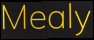
Mealy